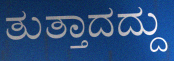
ತುತ್ತಾದದ್ದು